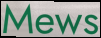
Mews